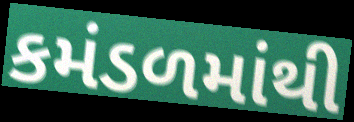
કમંડળમાંથી